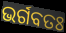
ଭର୍ଗବତଃ